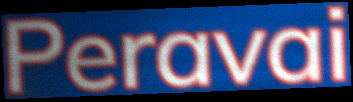
Peravai